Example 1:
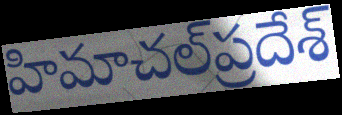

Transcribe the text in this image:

హిమాచల్‌ప్రదేశ్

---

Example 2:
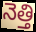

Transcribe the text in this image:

నెత్తి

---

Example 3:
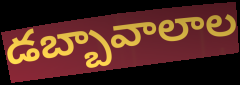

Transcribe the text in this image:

డబ్బావాలాల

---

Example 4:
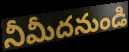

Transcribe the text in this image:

నీమీదనుండి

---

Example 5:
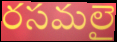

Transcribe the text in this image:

రసమలై